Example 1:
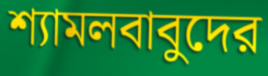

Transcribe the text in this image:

শ্যামলবাবুদের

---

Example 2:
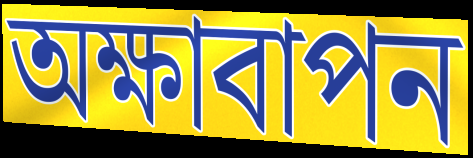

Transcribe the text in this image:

অক্ষাবাপন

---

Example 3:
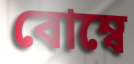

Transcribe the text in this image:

বোম্বে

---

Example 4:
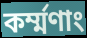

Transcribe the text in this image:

কর্ম্মণাং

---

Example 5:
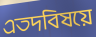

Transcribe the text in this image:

এতদবিষয়ে